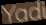
Yadi